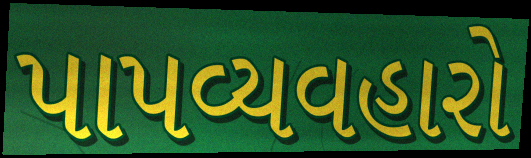
પાપવ્યવહારો